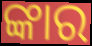
ଙ୍କାର